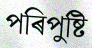
পৰিপুষ্টি